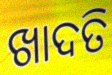
ଖାଦତି